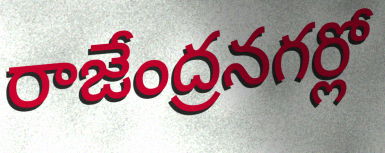
రాజేంద్రనగర్లో